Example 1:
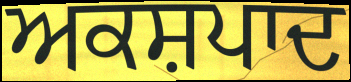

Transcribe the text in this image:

ਅਕਸ਼ਪਾਦ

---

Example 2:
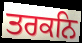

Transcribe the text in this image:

ਤਰਕਨਿ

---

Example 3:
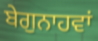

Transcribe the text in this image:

ਬੇਗੁਨਾਹਵਾਂ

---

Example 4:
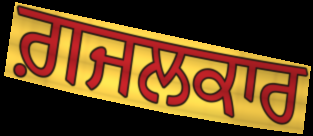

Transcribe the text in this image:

ਗ਼ਜਲਕਾਰ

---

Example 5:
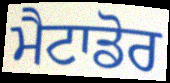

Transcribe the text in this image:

ਮੈਟਾਡੋਰ